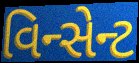
વિન્સેન્ટ